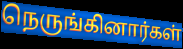
நெருங்கினார்கள்